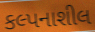
કલ્પનાશીલ